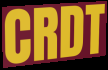
CRDT